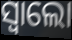
ସ୍ବାଲୋ